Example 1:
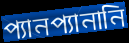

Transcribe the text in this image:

প্যানপ্যানানি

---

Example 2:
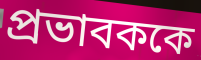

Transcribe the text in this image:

প্রভাবককে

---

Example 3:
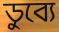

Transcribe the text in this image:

ডুব্যে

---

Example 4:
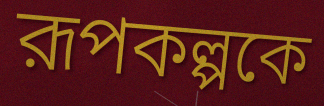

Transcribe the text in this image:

রূপকল্পকে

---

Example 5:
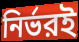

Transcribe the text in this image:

নির্ভরই